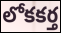
లోకకర్త